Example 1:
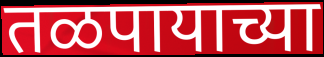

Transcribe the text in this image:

तळपायाच्या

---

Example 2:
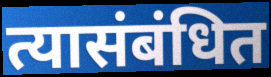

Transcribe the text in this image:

त्यासंबंधित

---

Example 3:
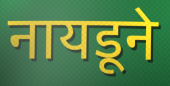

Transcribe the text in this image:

नायडूने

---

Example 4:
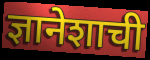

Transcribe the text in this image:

ज्ञानेशाची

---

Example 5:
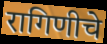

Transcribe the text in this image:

रागिणीचे